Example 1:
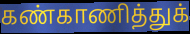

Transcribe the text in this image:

கண்காணித்துக்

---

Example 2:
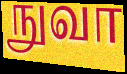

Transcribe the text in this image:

நுவா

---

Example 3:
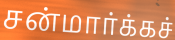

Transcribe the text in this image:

சன்மார்க்கச்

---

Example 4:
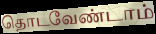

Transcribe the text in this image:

தொடவேண்டாம்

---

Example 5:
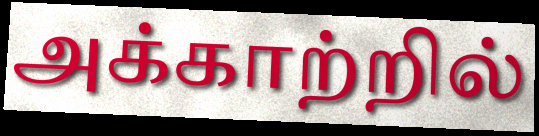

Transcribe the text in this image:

அக்காற்றில்